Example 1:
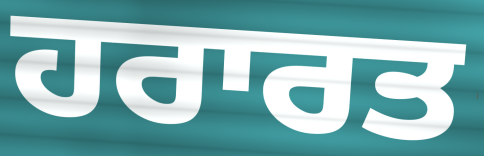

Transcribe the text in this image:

ਹਰਾਰਤ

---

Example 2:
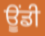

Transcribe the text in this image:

ਊਂਡੀ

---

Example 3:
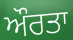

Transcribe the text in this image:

ਔਰਤਾ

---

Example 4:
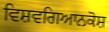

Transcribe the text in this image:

ਵਿਸ਼ਵਗਿਆਨਕੋਸ਼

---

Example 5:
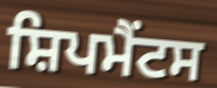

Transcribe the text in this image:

ਸ਼ਿਪਮੈਂਟਸ